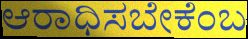
ಆರಾಧಿಸಬೇಕೆಂಬ